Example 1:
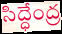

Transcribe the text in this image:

సిద్ధేంద్ర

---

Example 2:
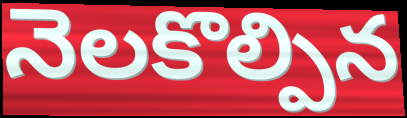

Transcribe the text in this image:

నెలకొల్పిన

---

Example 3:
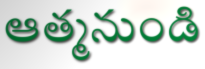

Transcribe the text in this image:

ఆత్మనుండి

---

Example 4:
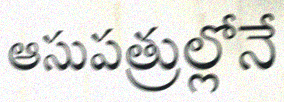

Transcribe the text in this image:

ఆసుపత్రుల్లోనే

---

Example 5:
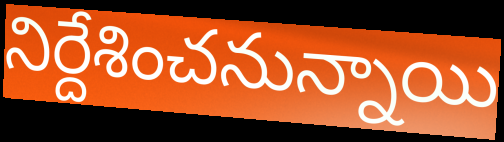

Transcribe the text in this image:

నిర్దేశించనున్నాయి